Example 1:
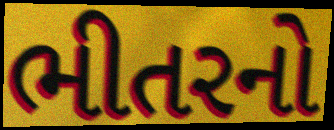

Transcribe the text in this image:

ભીતરનો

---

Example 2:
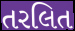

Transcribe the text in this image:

તરલિત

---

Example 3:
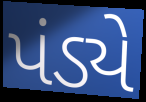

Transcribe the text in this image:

પંડ્યે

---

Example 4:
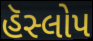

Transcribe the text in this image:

હૅસ્લોપ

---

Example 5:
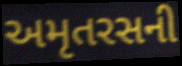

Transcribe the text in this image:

અમૃતરસની